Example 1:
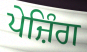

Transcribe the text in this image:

ਪੇਜ਼ਿੰਗ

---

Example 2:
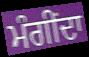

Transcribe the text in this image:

ਮੰਗੀਂਦਾ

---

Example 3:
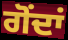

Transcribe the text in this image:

ਗੋਂਦਾਂ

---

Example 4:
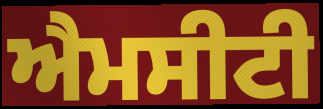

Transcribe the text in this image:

ਐਮਸੀਟੀ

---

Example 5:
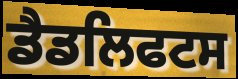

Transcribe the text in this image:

ਡੈਡਲਿਫਟਸ